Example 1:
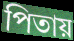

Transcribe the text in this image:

পিতায়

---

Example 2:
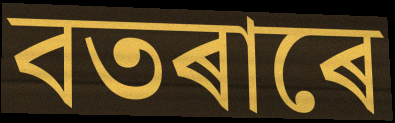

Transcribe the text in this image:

বতৰাৰে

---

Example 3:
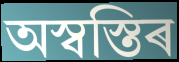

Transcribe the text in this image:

অস্বস্তিৰ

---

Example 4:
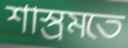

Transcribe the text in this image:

শাস্ত্ৰমতে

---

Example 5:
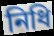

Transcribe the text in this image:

নিধি